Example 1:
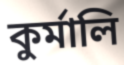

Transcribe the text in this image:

কুৰ্মালি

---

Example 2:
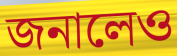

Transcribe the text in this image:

জনালেও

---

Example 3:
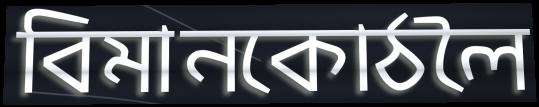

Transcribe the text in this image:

বিমানকোঠলৈ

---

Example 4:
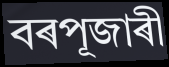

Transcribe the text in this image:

বৰপূজাৰী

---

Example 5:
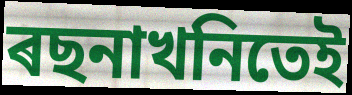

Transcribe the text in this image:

ৰছনাখনিতেই